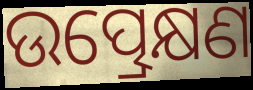
ଉତ୍ପ୍ରେକ୍ଷଣ